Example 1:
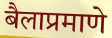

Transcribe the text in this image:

बैलाप्रमाणे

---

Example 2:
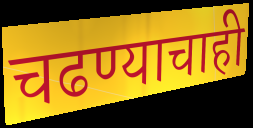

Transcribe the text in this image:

चढण्याचाही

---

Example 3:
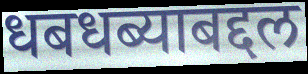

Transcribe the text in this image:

धबधब्याबद्दल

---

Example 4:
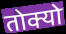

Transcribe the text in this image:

तोक्यो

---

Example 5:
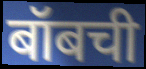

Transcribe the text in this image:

बॉबची